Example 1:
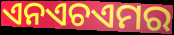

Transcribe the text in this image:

ଏନଏଚଏମର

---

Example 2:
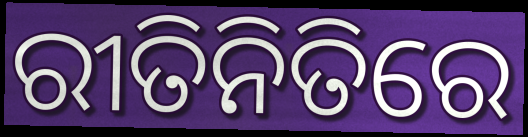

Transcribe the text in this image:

ରୀତିନିତିରେ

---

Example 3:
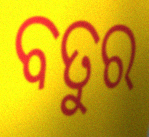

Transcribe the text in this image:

ବତୁର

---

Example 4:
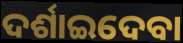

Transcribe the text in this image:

ଦର୍ଶାଇଦେବା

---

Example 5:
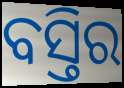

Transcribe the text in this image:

ବସ୍ତିର